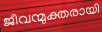
ജീവന്മുക്തരായി